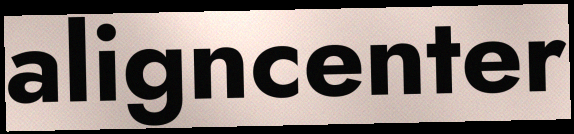
aligncenter